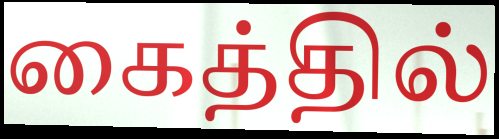
கைத்தில்